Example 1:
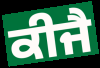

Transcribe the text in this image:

ਕੀਜੈ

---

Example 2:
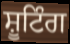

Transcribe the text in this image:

ਸ਼ੂਟਿੰਗ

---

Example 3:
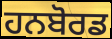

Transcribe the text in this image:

ਹਨਬੋਰਡ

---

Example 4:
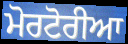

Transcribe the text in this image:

ਮੋਰਟੋਰੀਆ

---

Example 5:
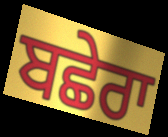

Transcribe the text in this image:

ਬਛੇਰਾ